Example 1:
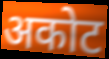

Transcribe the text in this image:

अकोट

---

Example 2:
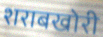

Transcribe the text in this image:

शराबखोरी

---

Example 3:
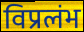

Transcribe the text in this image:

विप्रलंभ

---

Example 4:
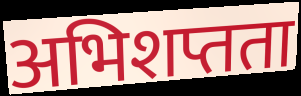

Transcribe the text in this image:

अभिशप्तता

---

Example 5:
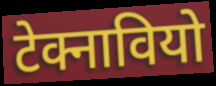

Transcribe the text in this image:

टेक्नावियो